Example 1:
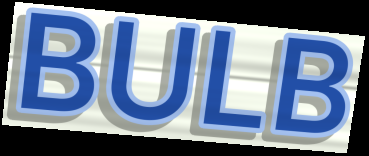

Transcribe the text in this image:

BULB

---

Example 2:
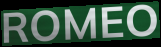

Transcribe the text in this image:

ROMEO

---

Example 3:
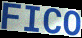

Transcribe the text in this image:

FICO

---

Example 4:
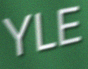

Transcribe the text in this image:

YLE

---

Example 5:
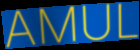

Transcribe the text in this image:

AMUL